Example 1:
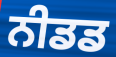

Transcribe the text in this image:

ਨੀਡਡ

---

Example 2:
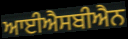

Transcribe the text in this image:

ਆਈਐਸਬੀਐਨ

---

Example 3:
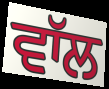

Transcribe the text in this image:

ਵਾੱਲ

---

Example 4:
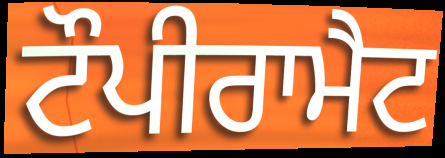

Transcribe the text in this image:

ਟੌਪੀਰਾਮੈਟ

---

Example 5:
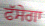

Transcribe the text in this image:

ਫੱਸੇਗਾ